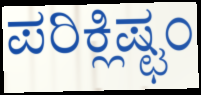
ಪರಿಕ್ಲಿಷ್ಟಂ